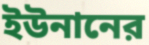
ইউনানের